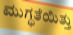
ಮುಗ್ಧತೆಯಿತ್ತು